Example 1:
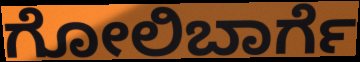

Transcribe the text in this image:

ಗೋಲಿಬಾರ್ಗೆ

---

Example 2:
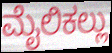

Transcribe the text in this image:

ಮೈಲಿಕಲ್ಲು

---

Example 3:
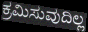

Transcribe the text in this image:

ಕ್ರಮಿಸುವುದಿಲ್ಲ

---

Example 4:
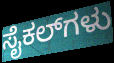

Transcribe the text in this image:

ಸೈಕಲ್‌ಗಳು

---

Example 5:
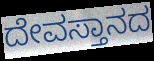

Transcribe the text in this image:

ದೇವಸ್ತಾನದ